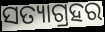
ସତ୍ୟାଗ୍ରହର